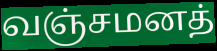
வஞ்சமனத்